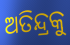
ଅତିନ୍ଦ୍ରକୁ